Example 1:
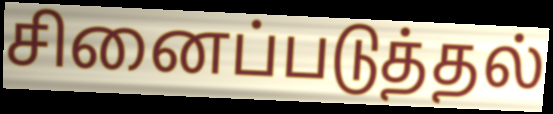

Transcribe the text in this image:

சினைப்படுத்தல்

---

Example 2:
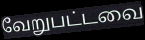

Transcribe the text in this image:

வேறுபட்டவை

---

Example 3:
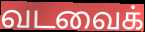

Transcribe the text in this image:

வடவைக்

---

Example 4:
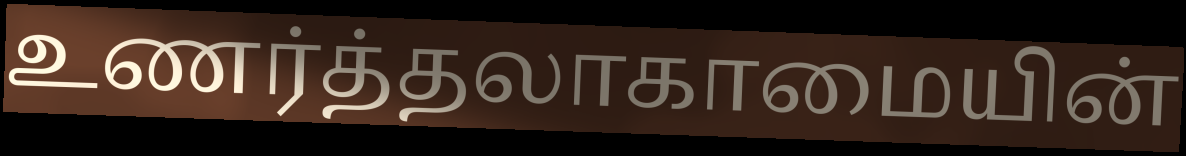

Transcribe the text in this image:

உணர்த்தலாகாமையின்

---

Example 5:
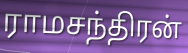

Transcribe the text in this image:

ராமசந்திரன்